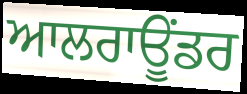
ਆਲਰਾਊਂਡਰ